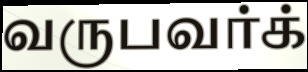
வருபவர்க்